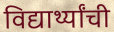
विद्यार्थ्‍यांची